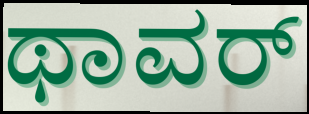
ಥಾವರ್